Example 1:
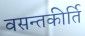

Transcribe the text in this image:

वसन्तकीर्ति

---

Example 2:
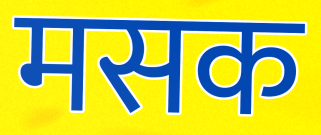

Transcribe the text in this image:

मसक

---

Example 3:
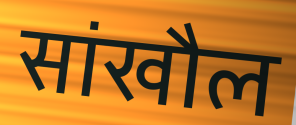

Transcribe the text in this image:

सांखौल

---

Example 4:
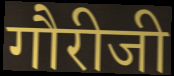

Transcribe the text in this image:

गौरीजी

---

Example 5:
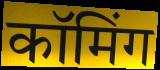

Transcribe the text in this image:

कॉमिंग